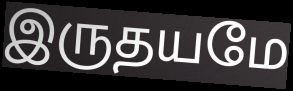
இருதயமே